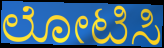
ಲೋಟಿಸಿ